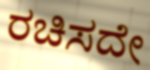
ರಚಿಸದೇ